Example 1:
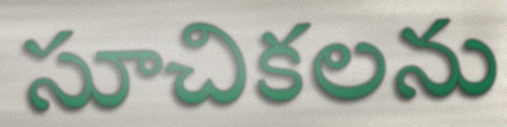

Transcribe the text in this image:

సూచికలను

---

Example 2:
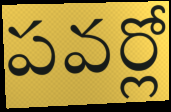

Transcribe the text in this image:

పవర్లో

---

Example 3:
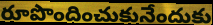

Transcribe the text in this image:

రూపొందించుకునేందుకు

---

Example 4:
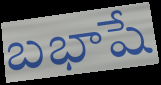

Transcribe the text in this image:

బభాషే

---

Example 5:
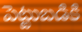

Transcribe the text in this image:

పెట్టుబడికి